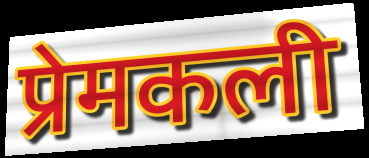
प्रेमकली